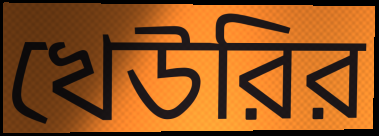
খেউরির